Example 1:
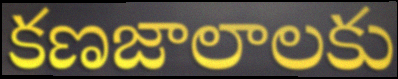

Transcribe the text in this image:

కణజాలాలకు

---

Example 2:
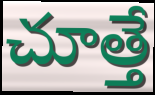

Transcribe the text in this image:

చూత్తే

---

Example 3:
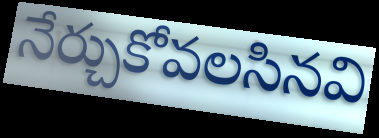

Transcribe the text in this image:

నేర్చుకోవలసినవి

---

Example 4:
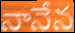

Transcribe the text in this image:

నానేన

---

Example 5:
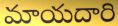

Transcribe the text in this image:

మాయదారి